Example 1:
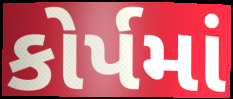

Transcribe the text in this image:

કોર્પમાં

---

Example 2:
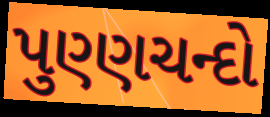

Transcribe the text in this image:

પુણ્ણચન્દો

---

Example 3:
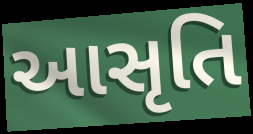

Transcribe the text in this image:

આસૃતિ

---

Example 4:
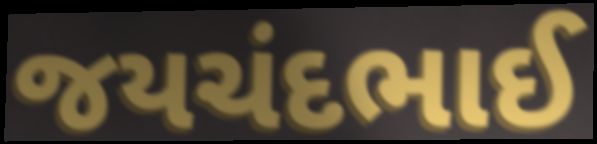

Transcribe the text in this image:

જયચંદભાઈ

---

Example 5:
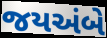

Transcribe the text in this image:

જયઅંબે